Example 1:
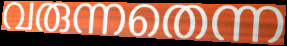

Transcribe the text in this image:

വരുന്നതെന്ന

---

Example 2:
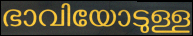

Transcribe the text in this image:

ഭാവിയോടുള്ള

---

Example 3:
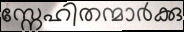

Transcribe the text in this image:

സ്നേഹിതന്മാർക്കു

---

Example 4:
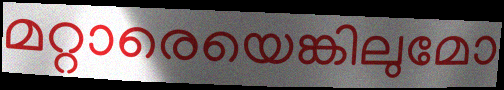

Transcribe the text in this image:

മറ്റാരെയെങ്കിലുമോ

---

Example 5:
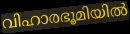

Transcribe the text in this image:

വിഹാരഭൂമിയിൽ